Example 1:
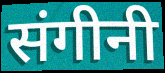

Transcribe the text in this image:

संगीनी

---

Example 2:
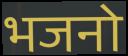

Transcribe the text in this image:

भजनो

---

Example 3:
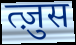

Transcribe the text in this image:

त्ज़ुस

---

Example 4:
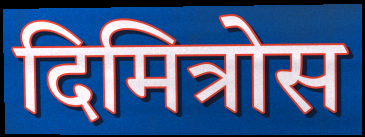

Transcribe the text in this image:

दिमित्रोस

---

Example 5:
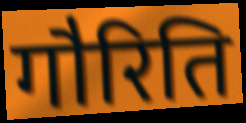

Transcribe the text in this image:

गौरिति